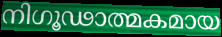
നിഗൂഢാത്മകമായ